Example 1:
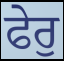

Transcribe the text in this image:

ਫੇਰੁ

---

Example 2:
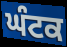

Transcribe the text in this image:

ਘੰਟਕ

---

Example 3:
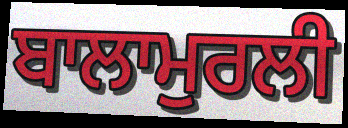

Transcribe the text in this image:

ਬਾਲਾਮੁਰਲੀ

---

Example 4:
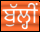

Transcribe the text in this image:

ਬੁੱਲ੍ਹੀਂ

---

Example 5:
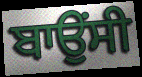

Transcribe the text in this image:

ਬਾਉਂਸੀ